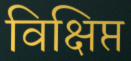
विक्षिप्त